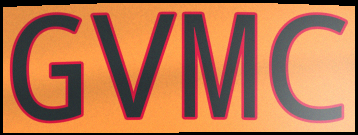
GVMC